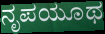
ನೃಪಯೂಥ